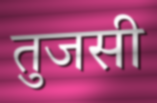
तुजसी